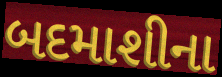
બદમાશીના